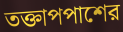
তক্তাপপাশের